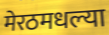
मेरठमधल्या